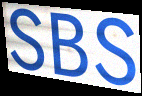
SBS